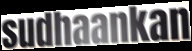
sudhaankan